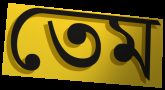
তেম